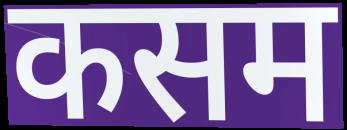
कसम